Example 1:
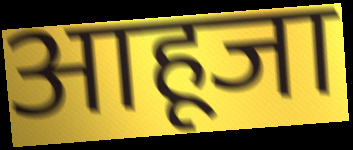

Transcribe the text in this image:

आहूजा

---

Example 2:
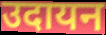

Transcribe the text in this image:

उदायन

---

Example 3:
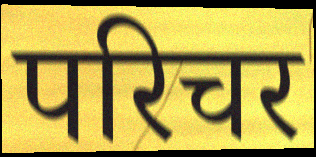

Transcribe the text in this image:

परिचर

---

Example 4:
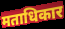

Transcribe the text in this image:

मताधिकार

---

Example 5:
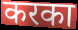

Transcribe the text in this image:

करका